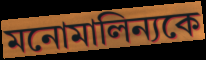
মনোমালিন্যকে